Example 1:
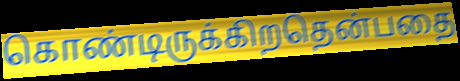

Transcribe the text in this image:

கொண்டிருக்கிறதென்பதை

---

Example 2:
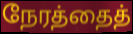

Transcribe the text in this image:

நேரத்தைத்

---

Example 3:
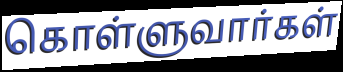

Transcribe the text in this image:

கொள்ளுவார்கள்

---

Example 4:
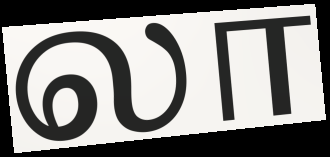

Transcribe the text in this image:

லா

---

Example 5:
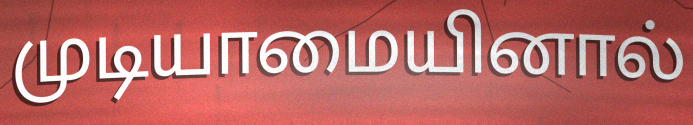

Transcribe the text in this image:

முடியாமையினால்